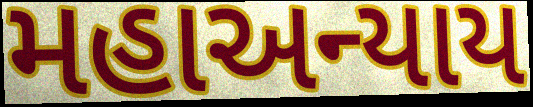
મહાઅન્યાય